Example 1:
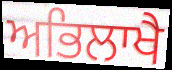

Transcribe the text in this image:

ਅਭਿਲਾਖੈ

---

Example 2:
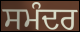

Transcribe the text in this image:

ਸਮੰਦਰ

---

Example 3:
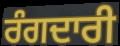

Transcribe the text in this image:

ਰੰਗਦਾਰੀ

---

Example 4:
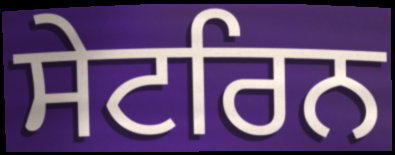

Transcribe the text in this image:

ਸੇਟਰਿਨ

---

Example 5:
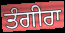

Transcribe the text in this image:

ਤੰਗੀਰਾ